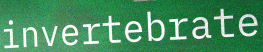
invertebrate